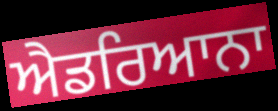
ਐਡਰਿਆਨਾ